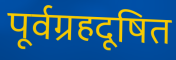
पूर्वग्रहदूषित